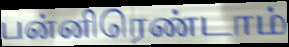
பன்னிரெண்டாம்